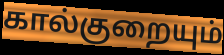
கால்குறையும்